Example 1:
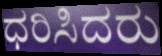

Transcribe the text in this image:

ಧರಿಸಿದರು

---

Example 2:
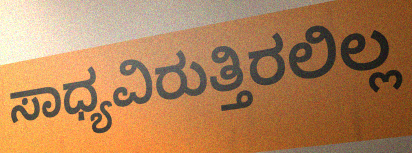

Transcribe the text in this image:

ಸಾಧ್ಯವಿರುತ್ತಿರಲಿಲ್ಲ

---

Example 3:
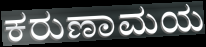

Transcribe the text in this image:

ಕರುಣಾಮಯ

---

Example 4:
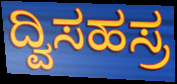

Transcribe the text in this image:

ದ್ವಿಸಹಸ್ರ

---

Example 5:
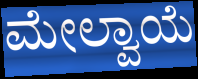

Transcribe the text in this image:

ಮೇಲ್ವಾಯೆ